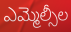
ఎమ్మెల్సీల